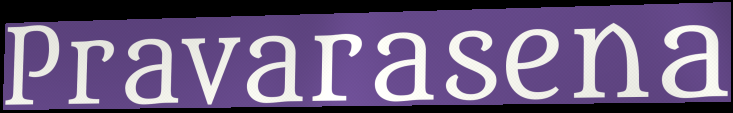
Pravarasena